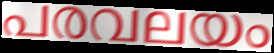
പരവലയം